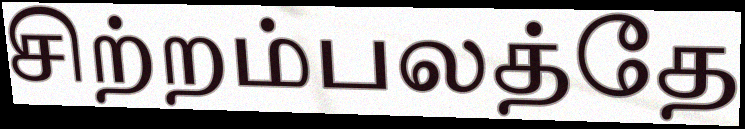
சிற்றம்பலத்தே